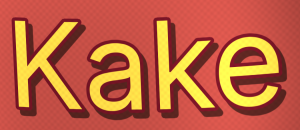
Kake